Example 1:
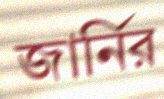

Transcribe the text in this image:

জার্নির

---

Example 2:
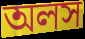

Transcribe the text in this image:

অলস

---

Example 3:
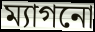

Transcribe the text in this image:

ম্যাগনো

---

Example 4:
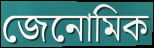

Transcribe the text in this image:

জেনোমিক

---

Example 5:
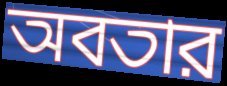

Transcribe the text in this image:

অবতার